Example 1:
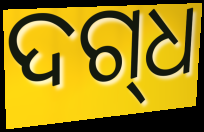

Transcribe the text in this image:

ଦଗ୍‍ଧ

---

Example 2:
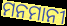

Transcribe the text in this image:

ମନମାନୀ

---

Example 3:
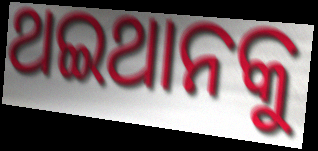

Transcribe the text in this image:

ଥଇଥାନକୁ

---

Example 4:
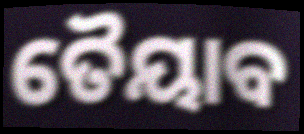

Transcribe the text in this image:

ତୈୟାବ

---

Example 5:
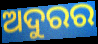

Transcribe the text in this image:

ଅଦୁରର